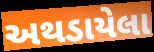
અથડાયેલા